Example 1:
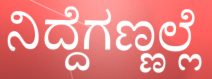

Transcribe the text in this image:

ನಿದ್ದೆಗಣ್ಣಲ್ಲೆ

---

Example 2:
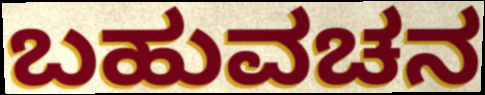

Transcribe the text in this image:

ಬಹುವಚನ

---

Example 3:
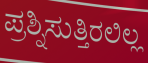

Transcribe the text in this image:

ಪ್ರಶ್ನಿಸುತ್ತಿರಲಿಲ್ಲ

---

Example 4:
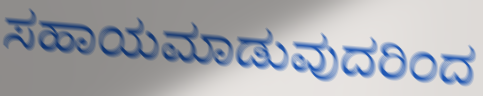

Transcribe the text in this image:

ಸಹಾಯಮಾಡುವುದರಿಂದ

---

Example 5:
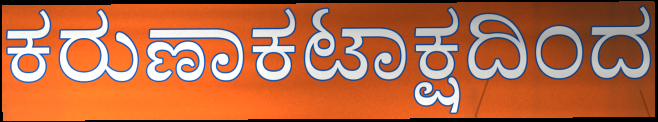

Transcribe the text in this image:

ಕರುಣಾಕಟಾಕ್ಷದಿಂದ